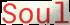
Soul